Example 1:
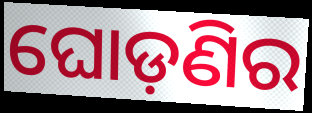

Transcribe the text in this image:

ଘୋଡ଼ଣିର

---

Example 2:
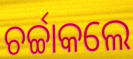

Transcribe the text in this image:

ଚର୍ଚ୍ଚାକଲେ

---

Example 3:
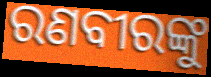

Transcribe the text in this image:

ରଣବୀରଙ୍କୁ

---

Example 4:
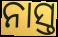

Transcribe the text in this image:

ନାସ୍ତ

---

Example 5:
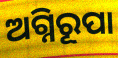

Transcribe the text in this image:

ଅଗ୍ନିରୂପା